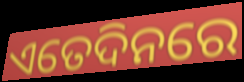
ଏତେଦିନରେ